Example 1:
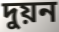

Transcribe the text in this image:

দুয়ন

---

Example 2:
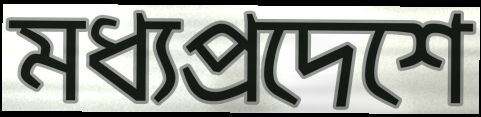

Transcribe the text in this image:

মধ্যপ্রদেশে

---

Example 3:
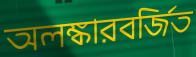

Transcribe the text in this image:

অলঙ্কারবর্জিত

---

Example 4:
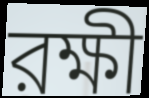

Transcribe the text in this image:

রক্ষী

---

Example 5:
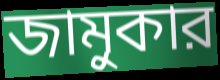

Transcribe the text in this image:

জামুকার